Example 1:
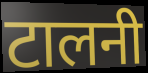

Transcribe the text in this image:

टालनी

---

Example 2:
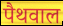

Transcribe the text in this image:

पैथवाल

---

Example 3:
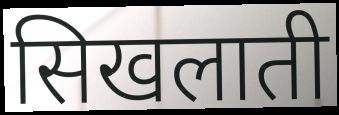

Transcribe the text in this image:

सिखलाती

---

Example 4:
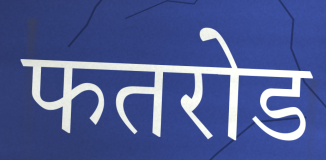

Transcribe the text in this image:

फतरोड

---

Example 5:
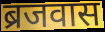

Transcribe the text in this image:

ब्रजवास